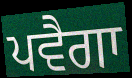
ਪਵੈਗਾ